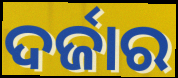
ଦର୍ଜାର